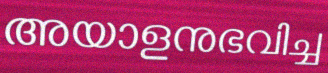
അയാളനുഭവിച്ച